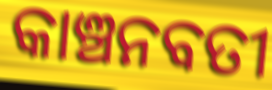
କାଞ୍ଚନବତୀ